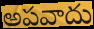
అపవాదు